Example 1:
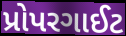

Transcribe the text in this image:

પ્રોપરગાઈટ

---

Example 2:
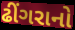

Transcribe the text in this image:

ઢીંગરાનો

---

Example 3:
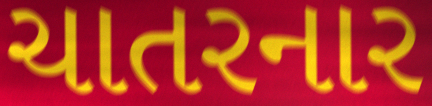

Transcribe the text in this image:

ચાતરનાર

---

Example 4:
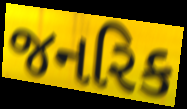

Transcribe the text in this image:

જનરિક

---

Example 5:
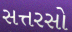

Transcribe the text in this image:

સત્તરસો